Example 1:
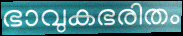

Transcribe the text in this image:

ഭാവുകഭരിതം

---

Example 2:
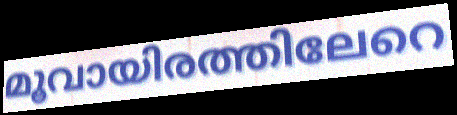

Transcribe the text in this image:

മൂവായിരത്തിലേറെ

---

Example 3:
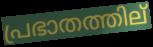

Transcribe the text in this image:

പ്രഭാതത്തില്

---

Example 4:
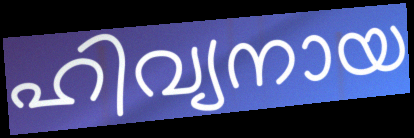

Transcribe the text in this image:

ഹിവ്യനായ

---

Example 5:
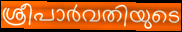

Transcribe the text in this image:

ശ്രീപാർവതിയുടെ